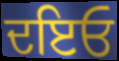
ਦਇਓ